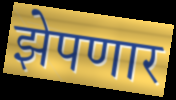
झेपणार